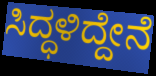
ಸಿದ್ಧಳಿದ್ದೇನೆ